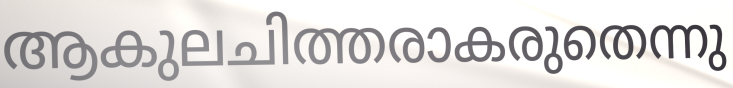
ആകുലചിത്തരാകരുതെന്നു